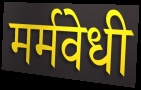
मर्मवेधी